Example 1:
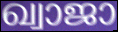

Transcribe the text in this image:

ഖ്വാജാ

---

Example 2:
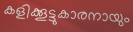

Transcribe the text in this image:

കളിക്കൂട്ടുകാരനായും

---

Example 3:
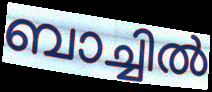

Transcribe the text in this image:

ബാച്ചിൽ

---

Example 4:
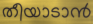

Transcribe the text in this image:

തീയാടാൻ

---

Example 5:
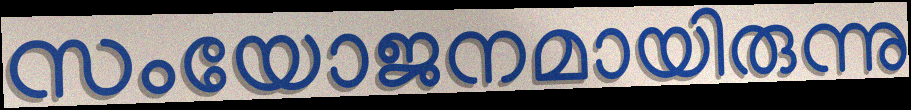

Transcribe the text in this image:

സംയോജനമായിരുന്നു